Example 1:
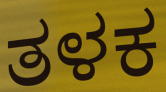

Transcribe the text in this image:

ತಳಕ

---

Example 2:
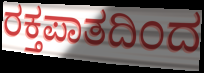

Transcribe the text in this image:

ರಕ್ತಪಾತದಿಂದ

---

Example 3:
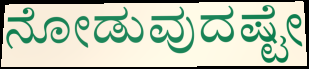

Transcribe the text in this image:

ನೋಡುವುದಷ್ಟೇ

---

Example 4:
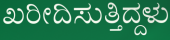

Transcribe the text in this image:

ಖರೀದಿಸುತ್ತಿದ್ದಳು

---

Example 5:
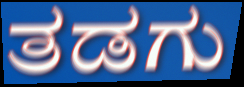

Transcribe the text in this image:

ತಡಗು